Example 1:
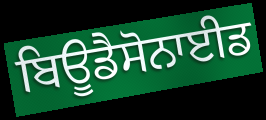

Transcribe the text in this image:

ਬਿਊਡੈਸੋਨਾਈਡ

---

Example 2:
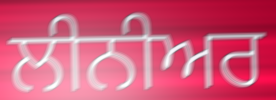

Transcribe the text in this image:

ਲੀਨੀਅਰ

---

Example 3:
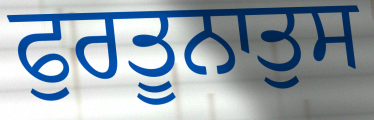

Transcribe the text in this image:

ਫੁਰਤੂਨਾਤੁਸ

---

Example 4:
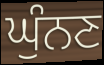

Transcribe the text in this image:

ਘੁੰਨਣ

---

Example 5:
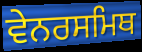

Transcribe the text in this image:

ਵੇਨਰਸਮਿਥ